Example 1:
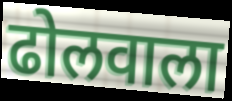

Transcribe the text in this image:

ढोलवाला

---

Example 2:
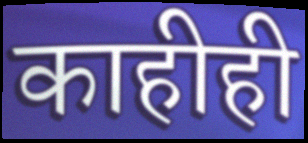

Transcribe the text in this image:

काहीही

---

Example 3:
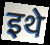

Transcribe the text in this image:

इथे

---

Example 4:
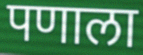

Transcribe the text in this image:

पणाला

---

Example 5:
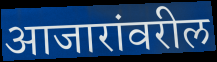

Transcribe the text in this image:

आजारांवरील